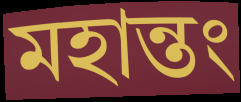
মহান্তং